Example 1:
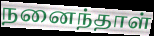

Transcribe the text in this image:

நனைந்தாள்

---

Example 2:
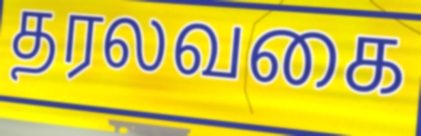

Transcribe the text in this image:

தரலவகை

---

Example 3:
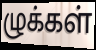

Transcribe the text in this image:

ழுக்கள்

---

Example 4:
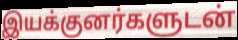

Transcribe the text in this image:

இயக்குனர்களுடன்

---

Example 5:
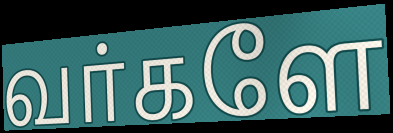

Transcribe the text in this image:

வர்களே